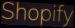
Shopify